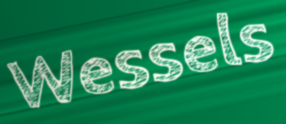
Wessels